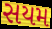
સયમ